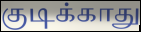
குடிக்காது